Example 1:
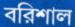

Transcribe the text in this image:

বরিশাল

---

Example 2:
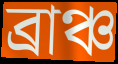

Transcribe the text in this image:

ব্রাঞ্চ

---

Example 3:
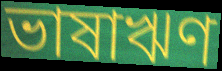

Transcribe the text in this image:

ভাষাঋণ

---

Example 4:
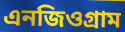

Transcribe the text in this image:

এনজিওগ্রাম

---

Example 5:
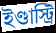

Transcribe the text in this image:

ইণ্ডাস্ট্রি